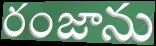
రంజాను